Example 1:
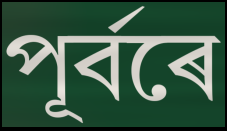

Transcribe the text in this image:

পূৰ্বৰে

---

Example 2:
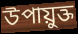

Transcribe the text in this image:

উপায়ুক্ত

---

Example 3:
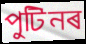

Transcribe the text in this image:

পুটিনৰ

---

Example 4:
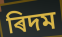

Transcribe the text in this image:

ৰিদম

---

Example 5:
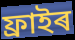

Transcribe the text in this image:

ফ্ৰাইৰ